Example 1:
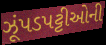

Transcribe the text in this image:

ઝૂંપડપટ્ટીઓની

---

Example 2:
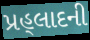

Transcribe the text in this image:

પ્રહ્‌લાદની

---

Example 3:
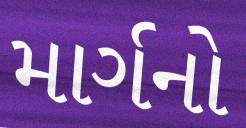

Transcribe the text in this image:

માર્ગનો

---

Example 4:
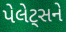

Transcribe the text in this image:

પેલેટ્સને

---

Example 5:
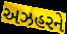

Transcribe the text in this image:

અઝહરને